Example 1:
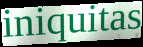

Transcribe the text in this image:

iniquitas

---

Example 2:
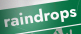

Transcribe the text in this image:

raindrops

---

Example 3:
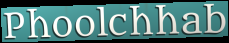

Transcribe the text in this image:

Phoolchhab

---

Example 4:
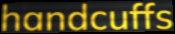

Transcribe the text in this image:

handcuffs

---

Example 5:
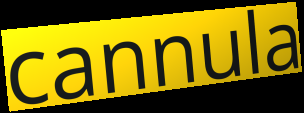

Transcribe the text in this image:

cannula